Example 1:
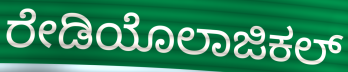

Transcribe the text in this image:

ರೇಡಿಯೊಲಾಜಿಕಲ್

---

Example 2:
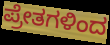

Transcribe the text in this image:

ಪ್ರೇತಗಳಿಂದ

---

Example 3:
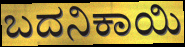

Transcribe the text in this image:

ಬದನಿಕಾಯಿ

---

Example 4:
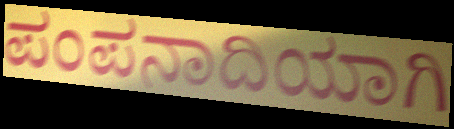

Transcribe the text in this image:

ಪಂಪನಾದಿಯಾಗಿ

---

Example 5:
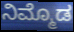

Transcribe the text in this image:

ನಿಮ್ಮೊಡ